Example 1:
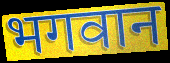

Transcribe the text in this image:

भगवान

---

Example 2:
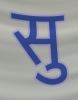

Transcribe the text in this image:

सु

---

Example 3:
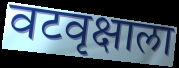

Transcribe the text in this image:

वटवृक्षाला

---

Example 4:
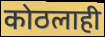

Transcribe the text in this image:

कोठलाही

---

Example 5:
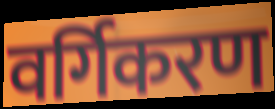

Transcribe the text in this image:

वर्गिकरण